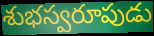
శుభస్వరూపుడు